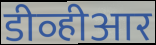
डीव्हीआर